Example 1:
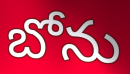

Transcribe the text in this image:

బోను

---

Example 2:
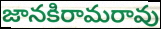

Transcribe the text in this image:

జానకిరామరావు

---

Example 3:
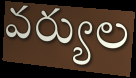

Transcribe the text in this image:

వర్యుల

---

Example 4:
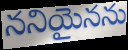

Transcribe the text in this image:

ననియైనను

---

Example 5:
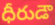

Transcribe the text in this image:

ధీరుడౌ